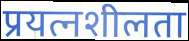
प्रयत्नशीलता